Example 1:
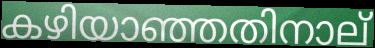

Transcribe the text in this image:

കഴിയാഞ്ഞതിനാല്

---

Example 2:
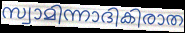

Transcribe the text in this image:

സ്വാമിന്നാദികിരാത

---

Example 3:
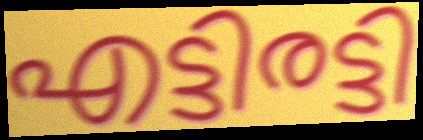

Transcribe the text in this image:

എട്ടിരട്ടി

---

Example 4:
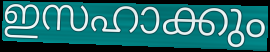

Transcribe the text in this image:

ഇസഹാക്കും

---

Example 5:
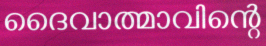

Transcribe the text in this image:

ദൈവാത്മാവിന്റെ